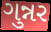
ગુન્નર